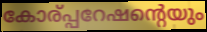
കോര്പ്പറേഷന്റെയും